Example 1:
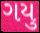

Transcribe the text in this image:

ગયુ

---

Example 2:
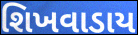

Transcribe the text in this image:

શિખવાડાય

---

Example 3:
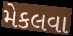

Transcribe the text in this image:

મેકલવા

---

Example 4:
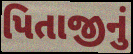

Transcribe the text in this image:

પિતાજીનું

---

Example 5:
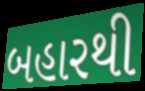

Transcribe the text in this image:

બહારથી